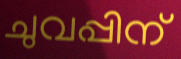
ചുവപ്പിന്